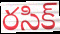
రసిక్